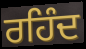
ਰਹਿੰਦ